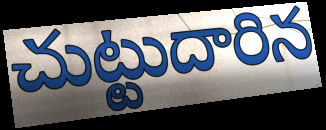
చుట్టుదారిన